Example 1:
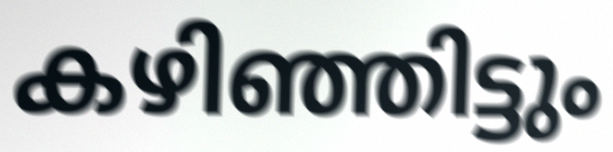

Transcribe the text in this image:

കഴിഞ്ഞിട്ടും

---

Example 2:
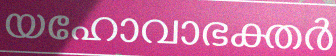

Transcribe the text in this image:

യഹോവാഭക്തർ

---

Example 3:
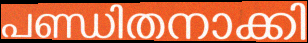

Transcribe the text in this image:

പണ്ഡിതനാക്കി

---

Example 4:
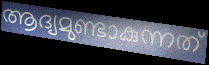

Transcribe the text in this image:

ആദ്യമുണ്ടാകുന്നത്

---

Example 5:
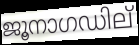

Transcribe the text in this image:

ജൂനാഗഡില്